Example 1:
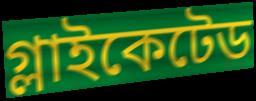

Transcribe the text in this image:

গ্লাইকেটেড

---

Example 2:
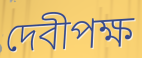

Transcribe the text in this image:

দেবীপক্ষ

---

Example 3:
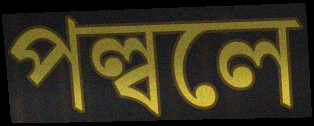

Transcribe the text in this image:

পল্বলে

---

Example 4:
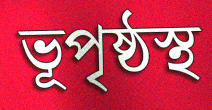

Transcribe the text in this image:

ভূপৃষ্ঠস্থ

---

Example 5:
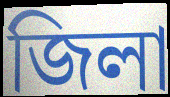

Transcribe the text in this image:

জিলা